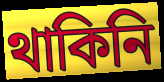
থাকিনি